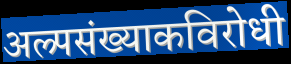
अल्पसंख्याकविरोधी